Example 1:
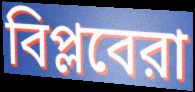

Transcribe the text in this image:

বিপ্লবেরা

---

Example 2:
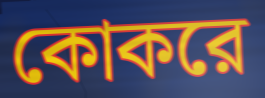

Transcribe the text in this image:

কোকরে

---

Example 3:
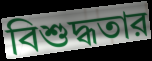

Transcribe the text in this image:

বিশুদ্ধতার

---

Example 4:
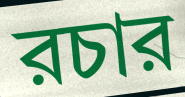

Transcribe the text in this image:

রচার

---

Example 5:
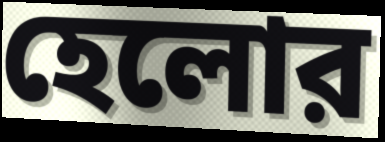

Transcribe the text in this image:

হেলোর